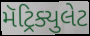
મૅટ્રિક્યુલેટ